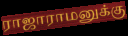
ராஜாராமனுக்கு